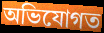
অভিযোগত